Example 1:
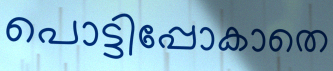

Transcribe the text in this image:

പൊട്ടിപ്പോകാതെ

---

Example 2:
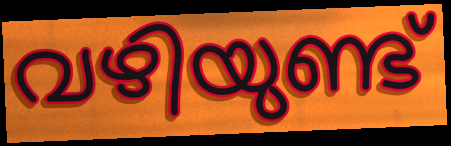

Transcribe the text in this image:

വഴിയുണ്ട്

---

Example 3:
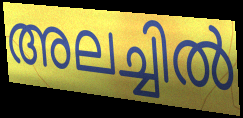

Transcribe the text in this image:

അലച്ചിൽ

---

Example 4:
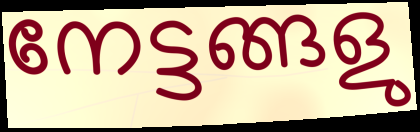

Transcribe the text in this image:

നേട്ടങ്ങളു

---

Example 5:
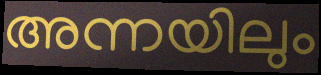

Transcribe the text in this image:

അന്നയിലും